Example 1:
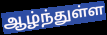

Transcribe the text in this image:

ஆழ்ந்துள்ள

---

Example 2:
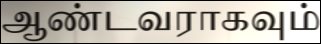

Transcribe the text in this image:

ஆண்டவராகவும்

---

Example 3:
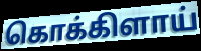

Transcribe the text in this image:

கொக்கிளாய்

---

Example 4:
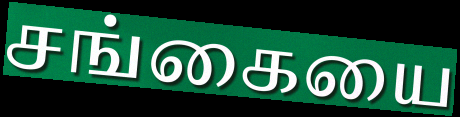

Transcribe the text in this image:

சங்கையை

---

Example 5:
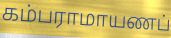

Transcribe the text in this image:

கம்பராமாயணப்